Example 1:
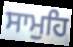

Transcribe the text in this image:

ਸਾਮੁਹਿ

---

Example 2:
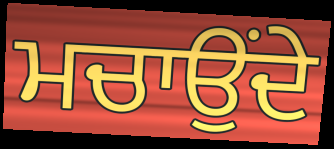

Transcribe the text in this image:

ਮਚਾਉਂਦੇ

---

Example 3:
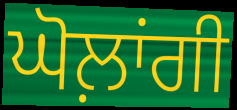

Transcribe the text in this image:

ਘੋਲ਼ਾਂਗੀ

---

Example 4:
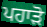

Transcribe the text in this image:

ਪਹਾੜੋ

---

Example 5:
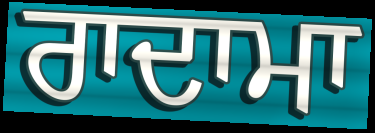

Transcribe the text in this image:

ਰਾਦਾਮਾ